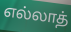
எல்லாத்